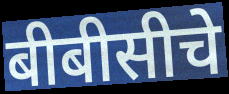
बीबीसीचे